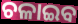
ଚଳାଇବ